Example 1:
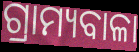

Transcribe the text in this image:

ଗ୍ରାମ୍ୟବାଳା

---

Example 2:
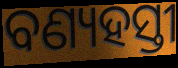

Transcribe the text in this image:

ବଣ୍ୟହସ୍ତୀ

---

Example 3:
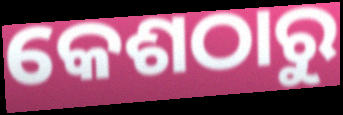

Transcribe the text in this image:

କେଶଠାରୁ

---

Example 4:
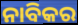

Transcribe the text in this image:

ନାବିକର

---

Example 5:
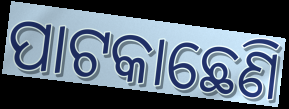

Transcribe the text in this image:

ପାଟକାଛେଣି